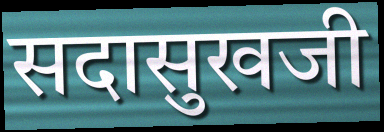
सदासुखजी